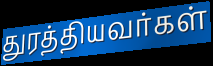
துரத்தியவர்கள்